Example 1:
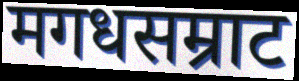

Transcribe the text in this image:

मगधसम्राट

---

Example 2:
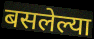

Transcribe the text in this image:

बसलेल्या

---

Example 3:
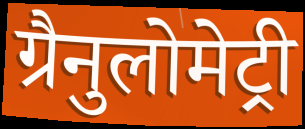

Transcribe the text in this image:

ग्रैनुलोमेट्री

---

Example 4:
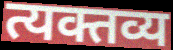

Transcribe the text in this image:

त्यक्तव्य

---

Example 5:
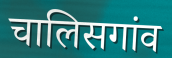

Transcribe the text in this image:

चालिसगांव